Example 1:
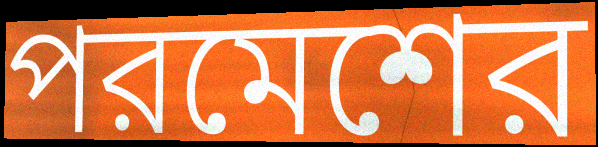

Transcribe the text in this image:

পরমেশের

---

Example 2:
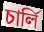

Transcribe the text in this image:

চার্লি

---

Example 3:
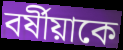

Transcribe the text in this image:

বর্ষীয়াকে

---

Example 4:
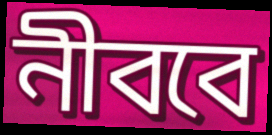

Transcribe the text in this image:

নীববে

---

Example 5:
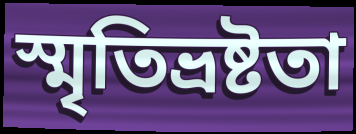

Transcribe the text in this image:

স্মৃতিভ্রষ্টতা